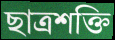
ছাত্ৰশক্তি